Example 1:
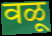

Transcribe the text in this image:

वळू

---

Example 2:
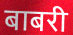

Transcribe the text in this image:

बाबरी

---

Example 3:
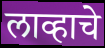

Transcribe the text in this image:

लाव्हाचे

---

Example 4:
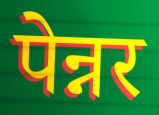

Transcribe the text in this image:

पेन्नर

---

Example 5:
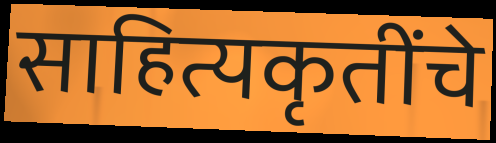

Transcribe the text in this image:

साहित्यकृतींचे